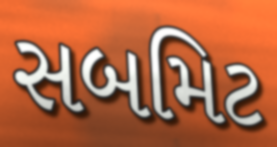
સબમિટ